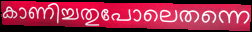
കാണിച്ചതുപോലെതന്നെ